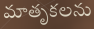
మాతృకలను